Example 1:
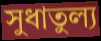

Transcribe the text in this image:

সুধাতুল্য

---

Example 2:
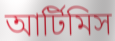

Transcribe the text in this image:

আর্টিমিস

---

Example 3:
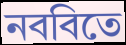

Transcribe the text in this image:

নববিতে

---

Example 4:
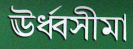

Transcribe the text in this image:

ঊর্ধ্বসীমা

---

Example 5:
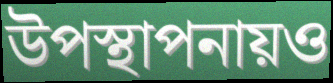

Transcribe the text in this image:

উপস্থাপনায়ও